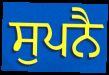
ਸੁਪਨੈ